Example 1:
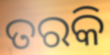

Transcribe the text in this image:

ତରକି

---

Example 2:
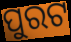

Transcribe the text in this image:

ପୁରଟ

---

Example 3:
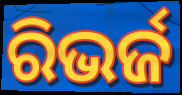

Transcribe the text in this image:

ରିଭର୍ଜ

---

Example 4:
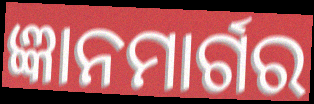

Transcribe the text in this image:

ଜ୍ଞାନମାର୍ଗର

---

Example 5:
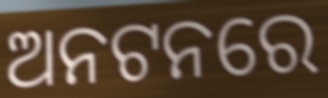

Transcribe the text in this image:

ଅନଟନରେ